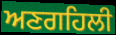
ਅਣਗਹਿਲੀ